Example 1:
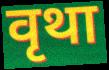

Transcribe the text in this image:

वृथा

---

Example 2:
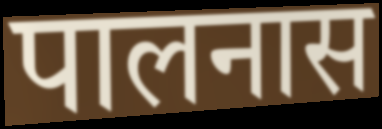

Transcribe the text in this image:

पालनास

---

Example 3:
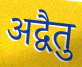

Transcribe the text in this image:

अद्वैतु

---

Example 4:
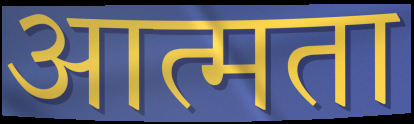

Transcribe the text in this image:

आत्मता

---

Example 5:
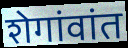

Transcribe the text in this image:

शेगांवांत